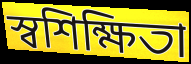
স্বশিক্ষিতা